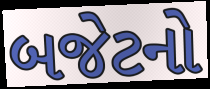
બજેટનો